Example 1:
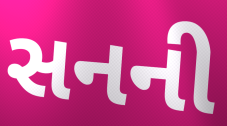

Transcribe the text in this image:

સનની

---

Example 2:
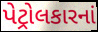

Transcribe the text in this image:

પેટ્રોલકારનાં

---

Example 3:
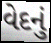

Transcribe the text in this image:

વેદનું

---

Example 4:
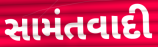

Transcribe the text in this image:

સામંતવાદી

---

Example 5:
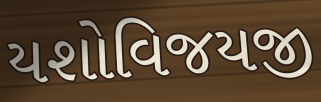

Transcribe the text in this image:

યશોવિજયજી